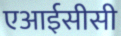
एआईसीसी